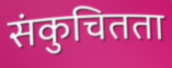
संकुचितता